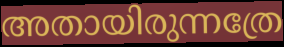
അതായിരുന്നത്രേ